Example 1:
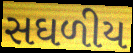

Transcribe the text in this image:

સઘળીય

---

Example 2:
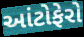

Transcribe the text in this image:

આંટોફેરો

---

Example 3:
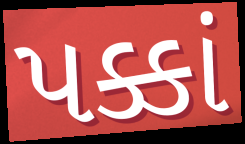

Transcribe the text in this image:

પક્કાં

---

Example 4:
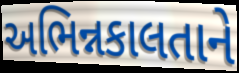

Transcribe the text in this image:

અભિન્નકાલતાને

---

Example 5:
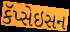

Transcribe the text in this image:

કૅપ્સેઇસન